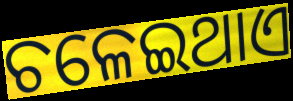
ଚଳେଇଥାଏ